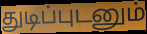
துடிப்புடனும்